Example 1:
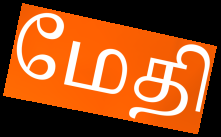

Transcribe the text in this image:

மேதி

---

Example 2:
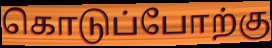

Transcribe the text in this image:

கொடுப்போற்கு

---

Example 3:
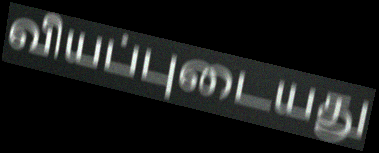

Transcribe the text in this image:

வியப்புடையது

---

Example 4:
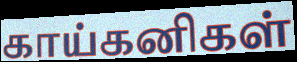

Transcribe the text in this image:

காய்கனிகள்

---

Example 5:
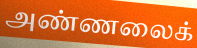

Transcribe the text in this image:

அண்ணலைக்